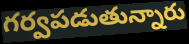
గర్వపడుతున్నారు